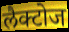
लैक्टोज